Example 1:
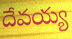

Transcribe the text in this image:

దేవయ్య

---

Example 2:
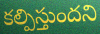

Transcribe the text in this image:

కల్పిస్తుందని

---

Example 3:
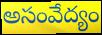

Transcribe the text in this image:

అసంవేద్యం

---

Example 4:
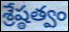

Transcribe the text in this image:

శ్రేష్ఠత్వం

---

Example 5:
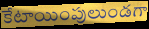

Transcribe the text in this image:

కేటాయింపులుండగా